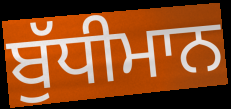
ਬੁੱਧੀਮਾਨ